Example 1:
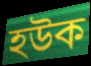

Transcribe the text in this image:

হউক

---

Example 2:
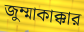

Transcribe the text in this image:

জুম্মাকাক্কার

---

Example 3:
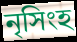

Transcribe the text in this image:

নৃসিংহ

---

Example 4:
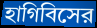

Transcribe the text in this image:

হাগিবিসের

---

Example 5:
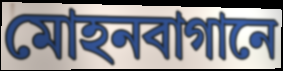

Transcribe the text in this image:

মোহনবাগানে